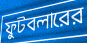
ফুটবলারের